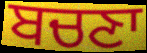
ਬਚਣਾ